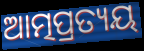
ଆତ୍ମପ୍ରତ୍ୟୟ